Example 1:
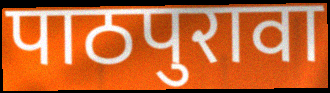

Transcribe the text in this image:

पाठपुरावा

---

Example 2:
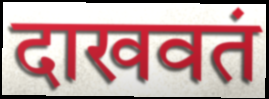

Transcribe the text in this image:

दाखवतं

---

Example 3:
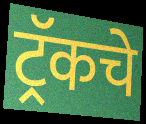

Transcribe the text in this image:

ट्रॅकचे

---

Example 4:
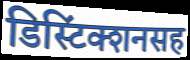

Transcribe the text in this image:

डिस्टिंक्शनसह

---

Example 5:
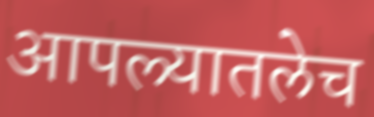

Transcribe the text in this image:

आपल्यातलेच